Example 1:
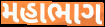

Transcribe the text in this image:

મહાભાગ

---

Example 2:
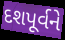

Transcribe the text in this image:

દશપૂર્વને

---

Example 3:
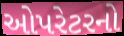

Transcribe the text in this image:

ઓપરેટરનો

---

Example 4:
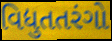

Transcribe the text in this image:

વિદ્યુતતરંગો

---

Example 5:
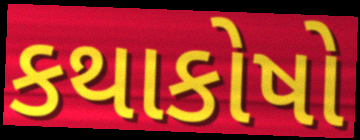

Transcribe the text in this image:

કથાકોષો